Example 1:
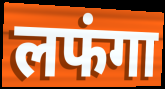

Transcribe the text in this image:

लफंगा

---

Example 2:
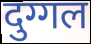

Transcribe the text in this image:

दुग्गल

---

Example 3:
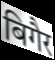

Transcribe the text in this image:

बिगैर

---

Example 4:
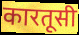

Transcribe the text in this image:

कारतूसी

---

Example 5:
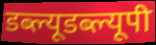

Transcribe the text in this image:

डब्ल्यूडब्ल्यूपी